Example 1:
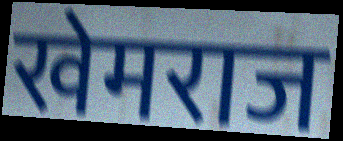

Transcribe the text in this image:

खेमराज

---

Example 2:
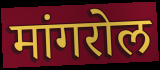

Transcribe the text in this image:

मांगरोल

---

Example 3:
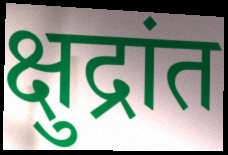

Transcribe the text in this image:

क्षुद्रांत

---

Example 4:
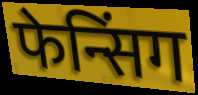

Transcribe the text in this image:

फेन्सिंग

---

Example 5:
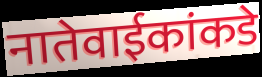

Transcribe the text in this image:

नातेवाईकांकडे